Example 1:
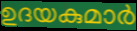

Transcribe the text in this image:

ഉദയകുമാർ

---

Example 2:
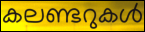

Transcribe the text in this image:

കലണ്ടറുകൾ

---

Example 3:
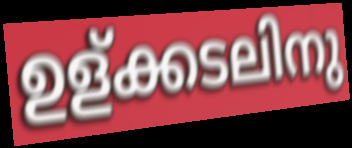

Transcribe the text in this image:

ഉള്ക്കടലിനു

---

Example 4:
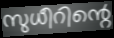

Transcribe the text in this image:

സുധീറിന്റെ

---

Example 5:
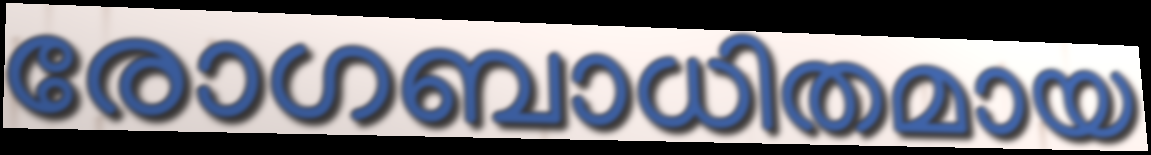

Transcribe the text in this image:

രോഗബാധിതമായ